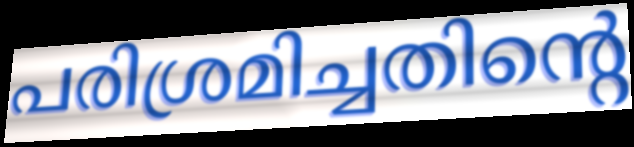
പരിശ്രമിച്ചതിന്റെ